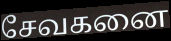
சேவகனை